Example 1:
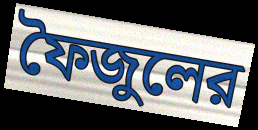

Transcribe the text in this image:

ফৈজুলের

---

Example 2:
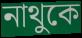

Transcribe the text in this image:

নাথুকে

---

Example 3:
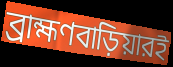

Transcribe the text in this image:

ব্রাহ্মণবাড়িয়ারই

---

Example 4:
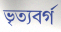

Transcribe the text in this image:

ভৃত্যবর্গ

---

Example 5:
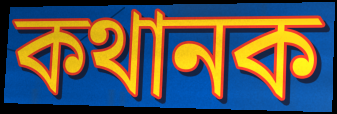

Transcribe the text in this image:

কথানক